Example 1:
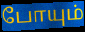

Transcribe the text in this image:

போயும்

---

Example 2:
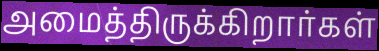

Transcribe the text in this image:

அமைத்திருக்கிறார்கள்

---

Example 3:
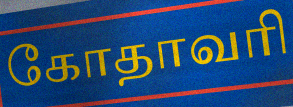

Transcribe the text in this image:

கோதாவரி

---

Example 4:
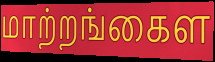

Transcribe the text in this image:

மாற்றங்கைள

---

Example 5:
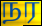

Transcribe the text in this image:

நர